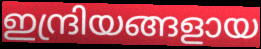
ഇന്ദ്രിയങ്ങളായ